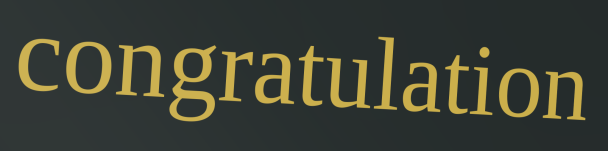
congratulation